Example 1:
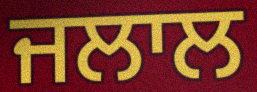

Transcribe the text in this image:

ਜਲਾਲ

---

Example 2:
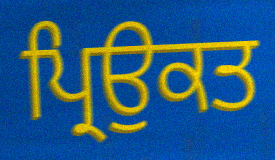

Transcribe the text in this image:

ਪ੍ਰਿਉਕਤ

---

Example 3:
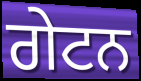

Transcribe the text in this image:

ਗੇਟਨ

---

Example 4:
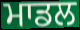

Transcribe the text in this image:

ਮਾਡਲ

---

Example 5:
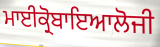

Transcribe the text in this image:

ਮਾਈਕ੍ਰੋਬਾਇਆਲੋਜੀ